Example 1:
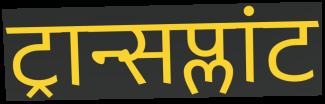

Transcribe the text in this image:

ट्रान्सप्लांट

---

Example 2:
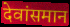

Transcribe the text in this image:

देवांसमान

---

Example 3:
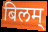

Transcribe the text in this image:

बिलम्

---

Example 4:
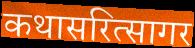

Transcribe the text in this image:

कथासरित्सागर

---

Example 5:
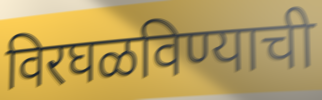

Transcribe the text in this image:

विरघळविण्याची